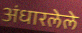
अंधारलेले